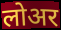
लोअर